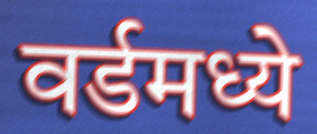
वर्डमध्ये